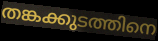
തങ്കക്കുടത്തിനെ